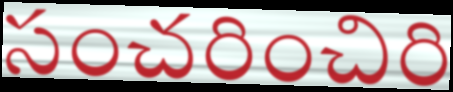
సంచరించిరి